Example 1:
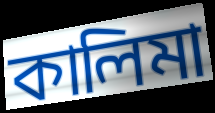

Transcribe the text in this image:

কালিমা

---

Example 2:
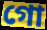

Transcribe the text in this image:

গো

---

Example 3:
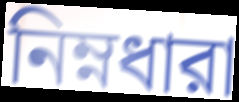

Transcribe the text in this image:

নিম্নধারা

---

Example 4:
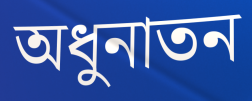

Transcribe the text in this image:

অধুনাতন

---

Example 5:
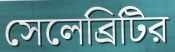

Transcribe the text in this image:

সেলেব্রিটির